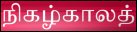
நிகழ்காலத்